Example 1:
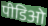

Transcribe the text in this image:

पीडिओ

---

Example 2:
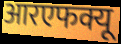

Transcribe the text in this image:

आरएफक्यू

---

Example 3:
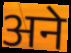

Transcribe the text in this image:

अने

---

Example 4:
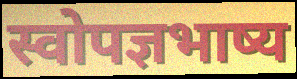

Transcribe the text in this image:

स्वोपज्ञभाष्य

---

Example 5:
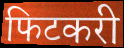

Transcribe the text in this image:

फिटकरी